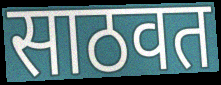
साठवत